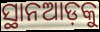
ସ୍ଥାନଆଡ଼କୁ